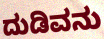
ದುಡಿವನು